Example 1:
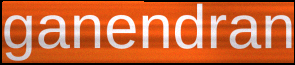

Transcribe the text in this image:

ganendran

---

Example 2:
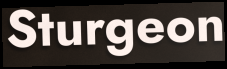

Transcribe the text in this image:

Sturgeon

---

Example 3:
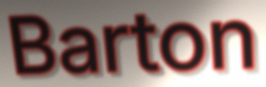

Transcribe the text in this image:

Barton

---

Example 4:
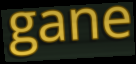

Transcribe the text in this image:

gane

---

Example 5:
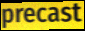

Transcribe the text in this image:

precast